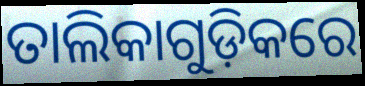
ତାଲିକାଗୁଡ଼ିକରେ